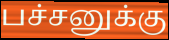
பச்சனுக்கு